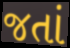
જતાં